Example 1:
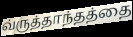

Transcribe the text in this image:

வ்ருத்தாந்தத்தை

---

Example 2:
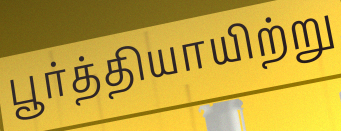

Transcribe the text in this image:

பூர்த்தியாயிற்று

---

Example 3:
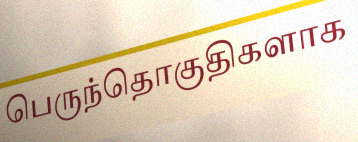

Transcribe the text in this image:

பெருந்தொகுதிகளாக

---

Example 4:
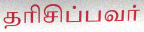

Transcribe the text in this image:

தரிசிப்பவர்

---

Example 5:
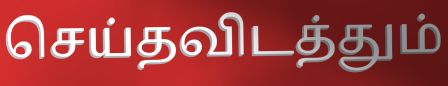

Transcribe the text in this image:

செய்தவிடத்தும்